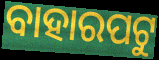
ବାହାରପଟୁ